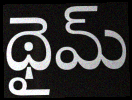
థైమ్